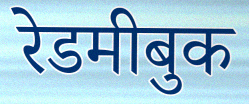
रेडमीबुक